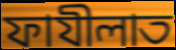
ফাযীলাত